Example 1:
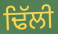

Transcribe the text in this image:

ਢਿੱਲੀ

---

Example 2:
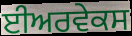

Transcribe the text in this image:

ਈਅਰਵੇਕਸ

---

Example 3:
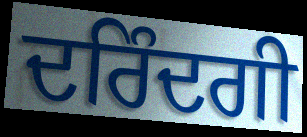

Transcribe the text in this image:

ਦਰਿੰਦਗੀ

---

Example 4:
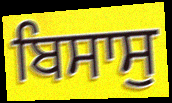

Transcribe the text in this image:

ਬਿਸਾਸੁ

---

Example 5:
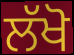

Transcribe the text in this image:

ਲੱਖੋ